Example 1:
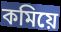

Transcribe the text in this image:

কমিয়ে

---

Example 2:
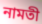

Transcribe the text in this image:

নামতী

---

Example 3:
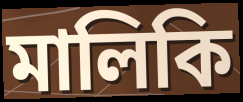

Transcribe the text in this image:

মালিকি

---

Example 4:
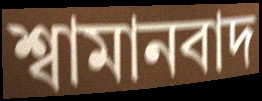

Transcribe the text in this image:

শ্বামানবাদ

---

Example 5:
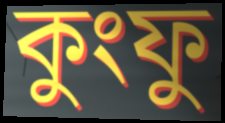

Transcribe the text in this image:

কুংফু